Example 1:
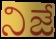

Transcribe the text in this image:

నిజే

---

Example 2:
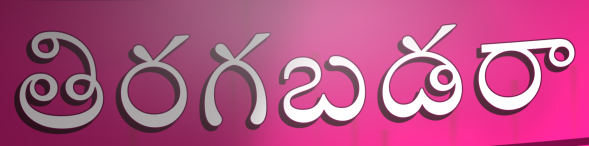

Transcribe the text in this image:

తిరగబడరా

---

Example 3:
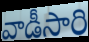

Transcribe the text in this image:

వాడీసారి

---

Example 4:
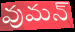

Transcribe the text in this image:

వుమన్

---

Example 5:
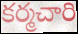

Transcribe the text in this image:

కర్మచారి